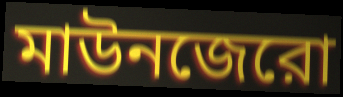
মাউনজেরো